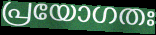
പ്രയോഗതഃ